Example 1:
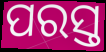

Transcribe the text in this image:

ପରସ୍ତ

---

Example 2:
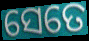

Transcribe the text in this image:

ସେତେ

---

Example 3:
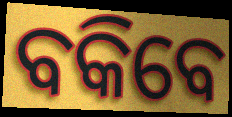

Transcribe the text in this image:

ବକିବେ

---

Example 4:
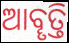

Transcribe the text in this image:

ଆବୄତ୍ତି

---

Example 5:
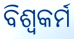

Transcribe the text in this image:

ବିଶ୍ୱକର୍ମ